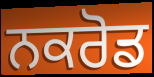
ਨਕਰੋਡ